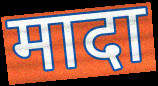
मादा